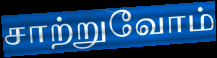
சாற்றுவோம்